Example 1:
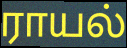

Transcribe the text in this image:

ராயல்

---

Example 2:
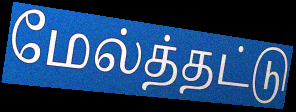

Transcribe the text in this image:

மேல்த்தட்டு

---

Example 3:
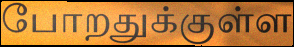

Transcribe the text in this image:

போறதுக்குள்ள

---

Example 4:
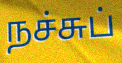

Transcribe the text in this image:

நச்சுப்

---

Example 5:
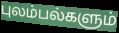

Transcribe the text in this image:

புலம்பல்களும்